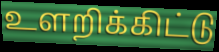
உளறிக்கிட்டு